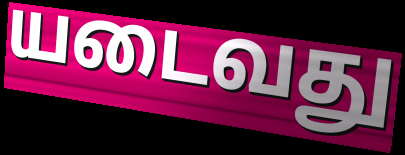
யடைவது